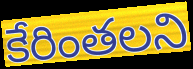
కేరింతలని